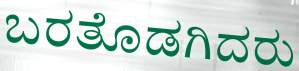
ಬರತೊಡಗಿದರು